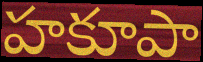
హకూపా